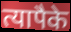
त्यापैके